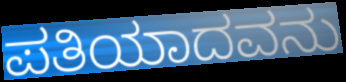
ಪತಿಯಾದವನು